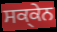
ਸਕ੍ਕੇਨ